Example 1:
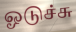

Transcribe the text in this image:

ஓடுச்சு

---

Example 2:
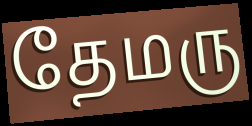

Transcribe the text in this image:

தேமரு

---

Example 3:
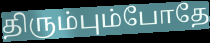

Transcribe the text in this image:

திரும்பும்போதே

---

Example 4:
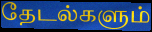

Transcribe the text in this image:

தேடல்களும்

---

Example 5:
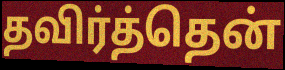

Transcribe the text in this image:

தவிர்த்தென்